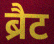
ब्रैट